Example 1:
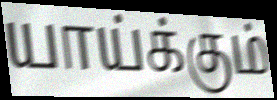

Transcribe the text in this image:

யாய்க்கும்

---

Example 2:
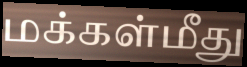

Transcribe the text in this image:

மக்கள்மீது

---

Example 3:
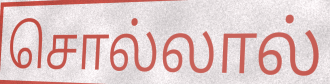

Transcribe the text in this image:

சொல்லால்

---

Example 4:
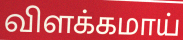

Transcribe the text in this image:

விளக்கமாய்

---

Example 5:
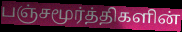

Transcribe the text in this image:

பஞ்சமூர்த்திகளின்